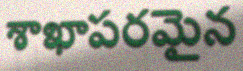
శాఖాపరమైన